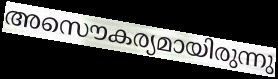
അസൌകര്യമായിരുന്നു